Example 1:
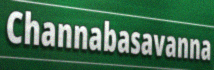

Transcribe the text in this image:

Channabasavanna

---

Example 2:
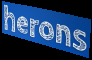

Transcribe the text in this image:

herons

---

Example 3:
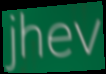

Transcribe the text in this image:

jhev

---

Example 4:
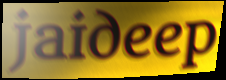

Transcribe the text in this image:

jaideep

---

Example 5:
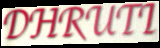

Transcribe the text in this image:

DHRUTI